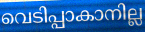
വെടിപ്പാകാനില്ല